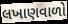
લખાણવાળો